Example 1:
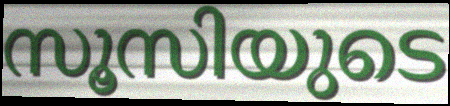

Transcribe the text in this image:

സൂസിയുടെ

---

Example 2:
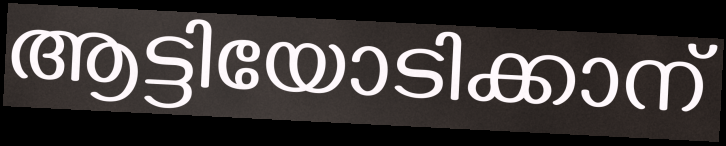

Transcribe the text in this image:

ആട്ടിയോടിക്കാന്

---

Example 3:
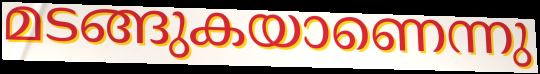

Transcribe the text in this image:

മടങ്ങുകയാണെന്നു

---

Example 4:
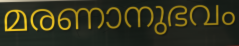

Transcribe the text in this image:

മരണാനുഭവം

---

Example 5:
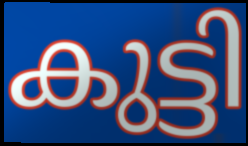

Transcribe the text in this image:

കുട്ടി